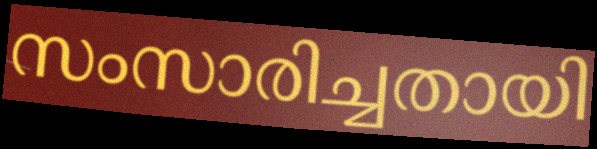
സംസാരിച്ചതായി